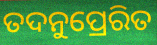
ତଦନୁପ୍ରେରିତ